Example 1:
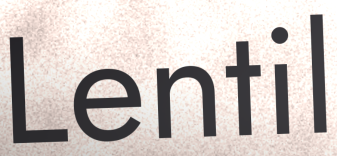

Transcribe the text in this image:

Lentil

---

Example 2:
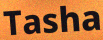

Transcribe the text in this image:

Tasha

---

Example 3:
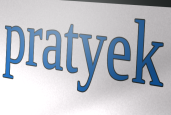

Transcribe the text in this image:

pratyek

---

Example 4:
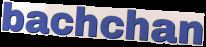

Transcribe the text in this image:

bachchan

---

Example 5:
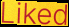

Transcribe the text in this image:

Liked